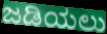
ಜಡಿಯಲು